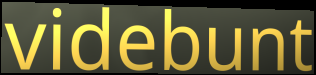
videbunt